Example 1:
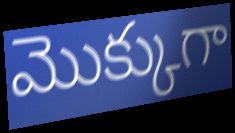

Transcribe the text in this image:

మొక్కుగా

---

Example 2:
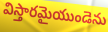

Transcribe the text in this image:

విస్తారమైయుండెను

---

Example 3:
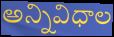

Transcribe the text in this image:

అన్నివిధాల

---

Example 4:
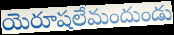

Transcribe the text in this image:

యెరూషలేమందుండు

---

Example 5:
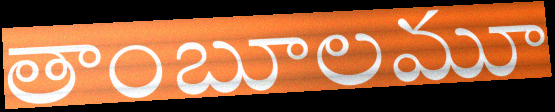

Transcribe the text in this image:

తాంబూలమూ